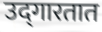
उद्‌गारतात